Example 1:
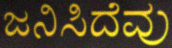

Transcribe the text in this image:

ಜನಿಸಿದೆವು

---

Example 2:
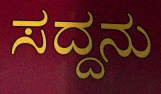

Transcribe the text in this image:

ಸದ್ದನು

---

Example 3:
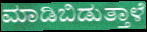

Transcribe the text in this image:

ಮಾಡಿಬಿಡುತ್ತಾಳೆ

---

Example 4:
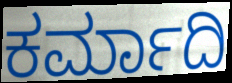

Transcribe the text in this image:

ಕರ್ಮಾದಿ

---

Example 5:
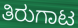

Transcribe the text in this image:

ತಿರುಗಾಟ